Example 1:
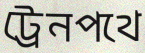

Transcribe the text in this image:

ট্রেনপথে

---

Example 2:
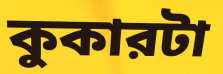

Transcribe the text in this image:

কুকারটা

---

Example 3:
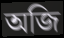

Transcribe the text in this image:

অজি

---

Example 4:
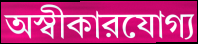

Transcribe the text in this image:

অস্বীকারযোগ্য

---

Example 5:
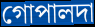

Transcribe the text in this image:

গোপালদা